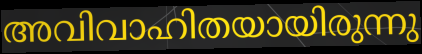
അവിവാഹിതയായിരുന്നു